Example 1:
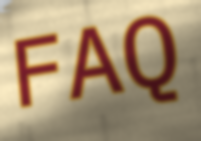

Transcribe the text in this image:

FAQ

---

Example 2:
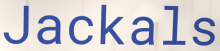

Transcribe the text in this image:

Jackals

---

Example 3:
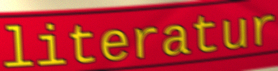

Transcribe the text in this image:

literatur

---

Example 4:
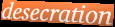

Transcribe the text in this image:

desecration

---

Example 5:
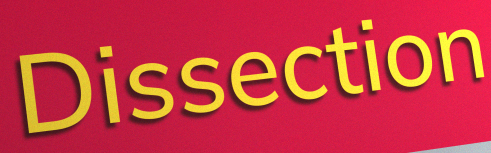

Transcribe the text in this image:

Dissection